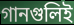
গানগুলিই